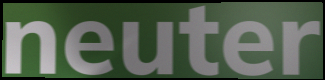
neuter